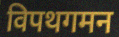
विपथगमन